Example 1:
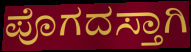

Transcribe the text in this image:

ಪೊಗದಸ್ತಾಗಿ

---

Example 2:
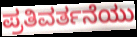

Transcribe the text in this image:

ಪ್ರತಿವರ್ತನೆಯು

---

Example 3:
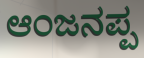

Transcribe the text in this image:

ಆಂಜನಪ್ಪ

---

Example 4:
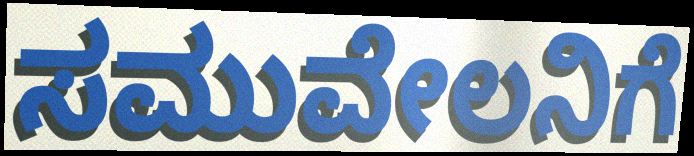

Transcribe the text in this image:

ಸಮುವೇಲನಿಗೆ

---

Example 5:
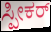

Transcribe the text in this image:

ಸ್ಪೀಕರ್